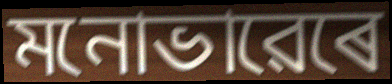
মনোভাৱেৰে